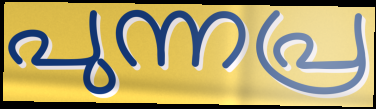
പുന്നപ്ര